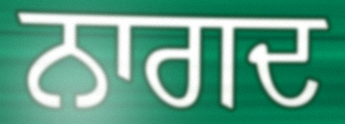
ਨਾਗਦ